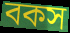
বকস